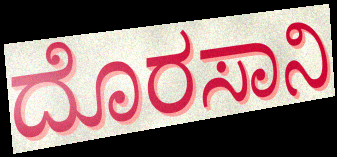
ದೊರಸಾನಿ